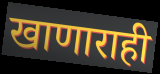
खाणाराही